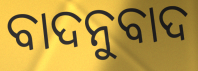
ବାଦନୁବାଦ